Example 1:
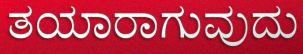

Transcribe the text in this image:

ತಯಾರಾಗುವುದು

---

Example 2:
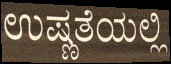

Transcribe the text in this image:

ಉಷ್ಣತೆಯಲ್ಲಿ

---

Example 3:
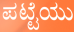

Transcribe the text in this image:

ಪಟ್ಟೆಯು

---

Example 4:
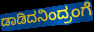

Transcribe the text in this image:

ಡಾಡಿದನಿಂದ್ರಂಗೆ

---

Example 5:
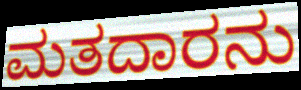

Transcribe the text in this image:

ಮತದಾರನು